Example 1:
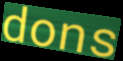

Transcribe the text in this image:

dons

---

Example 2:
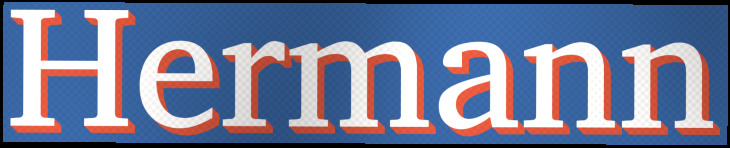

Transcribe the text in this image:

Hermann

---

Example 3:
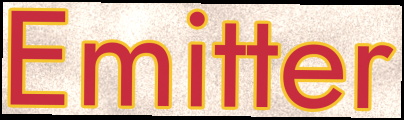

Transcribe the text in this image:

Emitter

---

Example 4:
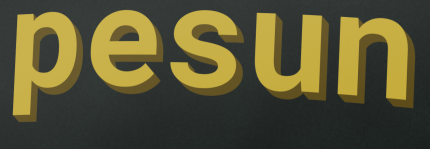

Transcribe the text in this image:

pesun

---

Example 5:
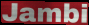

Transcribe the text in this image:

Jambi